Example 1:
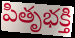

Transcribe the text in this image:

పితృభక్తి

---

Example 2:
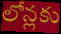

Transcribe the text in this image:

లోన్లకు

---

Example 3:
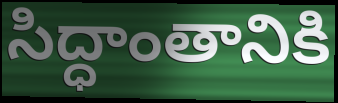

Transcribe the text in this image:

సిద్ధాంతానికి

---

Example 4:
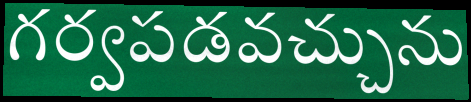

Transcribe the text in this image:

గర్వపడవచ్చును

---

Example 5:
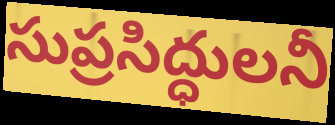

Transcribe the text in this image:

సుప్రసిద్ధులనీ